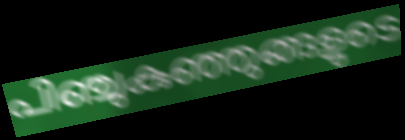
പിഞ്ചുകുഞ്ഞുങ്ങളുടെ